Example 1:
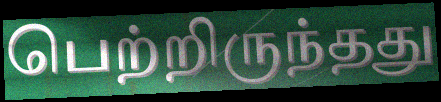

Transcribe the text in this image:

பெற்றிருந்தது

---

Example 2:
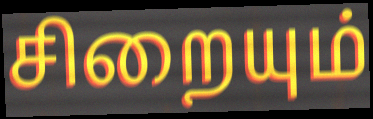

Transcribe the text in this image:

சிறையும்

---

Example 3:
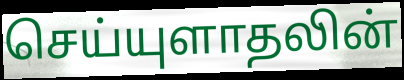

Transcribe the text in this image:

செய்யுளாதலின்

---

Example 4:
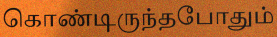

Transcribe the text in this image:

கொண்டிருந்தபோதும்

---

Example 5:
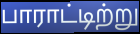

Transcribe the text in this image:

பாராட்டிற்று